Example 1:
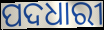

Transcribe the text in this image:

ପଦଧାରୀ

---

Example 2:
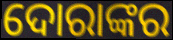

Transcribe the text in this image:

ଦୋରାଙ୍କର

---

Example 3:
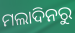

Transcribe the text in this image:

ମଲାଦିନରୁ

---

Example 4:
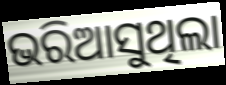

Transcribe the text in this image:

ଭରିଆସୁଥିଲା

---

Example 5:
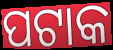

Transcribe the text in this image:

ପଟାକ